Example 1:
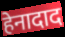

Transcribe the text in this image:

हेनादाद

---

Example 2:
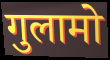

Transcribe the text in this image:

गुलामो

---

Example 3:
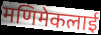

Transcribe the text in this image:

मणिमेकलाई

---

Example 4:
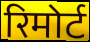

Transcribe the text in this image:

रिमोर्ट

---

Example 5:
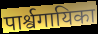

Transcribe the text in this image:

पार्श्वगायिका